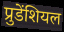
प्रुडेंशियल